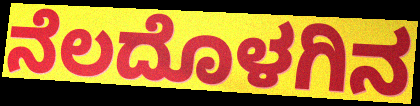
ನೆಲದೊಳಗಿನ